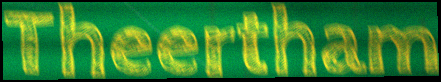
Theertham